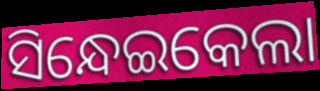
ସିନ୍ଧେଇକେଲା